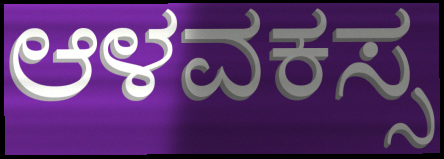
ಆಳವಕಸ್ಸ